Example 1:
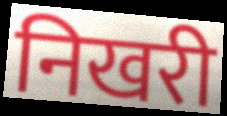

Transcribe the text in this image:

निखरी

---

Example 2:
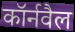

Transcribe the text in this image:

कॉर्नवैल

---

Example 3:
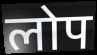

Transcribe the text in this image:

लोप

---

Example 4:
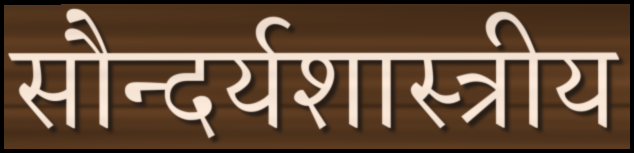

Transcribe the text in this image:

सौन्दर्यशास्त्रीय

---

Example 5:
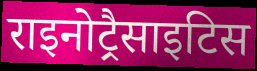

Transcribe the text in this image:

राइनोट्रैसाइटिस